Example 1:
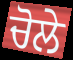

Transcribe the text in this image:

ਚੋਲੇ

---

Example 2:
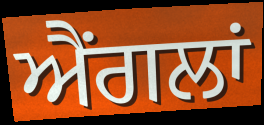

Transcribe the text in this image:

ਐਂਗਲਾਂ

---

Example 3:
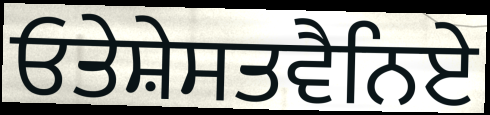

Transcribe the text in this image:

ਓਤੇਸ਼ੇਸਤਵੈਨਿਏ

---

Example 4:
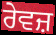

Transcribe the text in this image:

ਰੇਵਜ਼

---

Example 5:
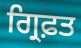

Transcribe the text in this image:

ਗ੍ਰਿਫ਼ਤ